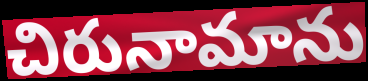
చిరునామాను